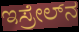
ಇಸ್ರೇಲ್‍ನ